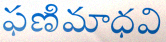
ఫణిమాధవి